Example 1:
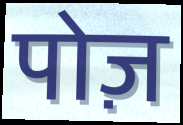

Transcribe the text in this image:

पोज़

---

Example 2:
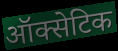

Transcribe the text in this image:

ऑक्सेटिक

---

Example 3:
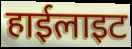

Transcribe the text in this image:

हाईलाइट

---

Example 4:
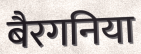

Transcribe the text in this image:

बैरगनिया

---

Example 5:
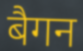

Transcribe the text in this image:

बैगन